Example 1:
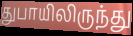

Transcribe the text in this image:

துபாயிலிருந்து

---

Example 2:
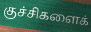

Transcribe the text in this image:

குச்சிகளைக்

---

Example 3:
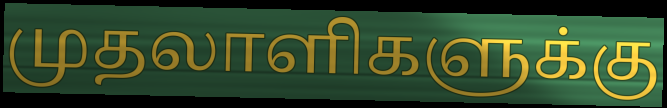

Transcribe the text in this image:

முதலாளிகளுக்கு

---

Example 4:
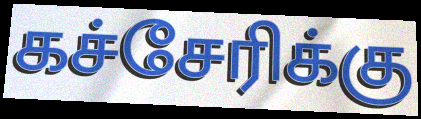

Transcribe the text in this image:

கச்சேரிக்கு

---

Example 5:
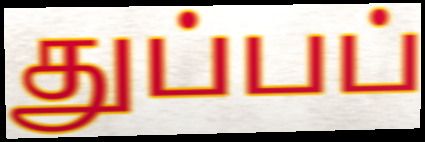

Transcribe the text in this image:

துப்பப்